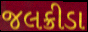
જલક્રીડા